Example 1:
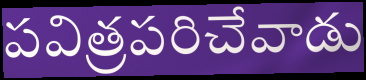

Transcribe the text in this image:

పవిత్రపరిచేవాడు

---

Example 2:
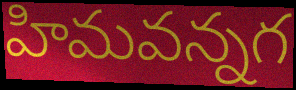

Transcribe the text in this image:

హిమవన్నగ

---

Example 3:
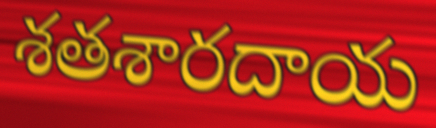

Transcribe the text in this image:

శతశారదాయ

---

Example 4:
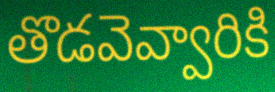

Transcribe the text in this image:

తొడవెవ్వారికి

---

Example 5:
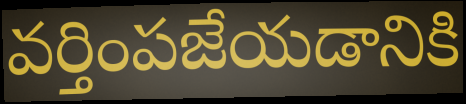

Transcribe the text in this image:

వర్తింపజేయడానికి